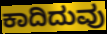
ಕಾದಿದುವು